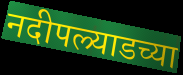
नदीपल्याडच्या